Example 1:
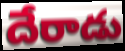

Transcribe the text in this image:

దేరాడు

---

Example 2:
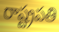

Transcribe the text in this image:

రాష్ట్రపతి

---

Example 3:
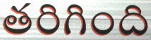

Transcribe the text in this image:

తరిగింది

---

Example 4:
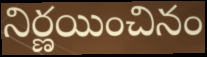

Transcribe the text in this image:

నిర్ణయించినం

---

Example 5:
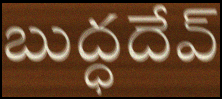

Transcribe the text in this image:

బుద్ధదేవ్